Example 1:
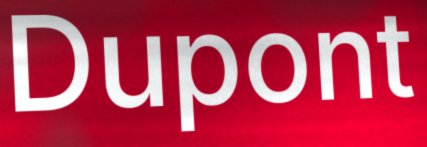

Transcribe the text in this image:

Dupont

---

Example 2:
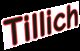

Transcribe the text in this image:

Tillich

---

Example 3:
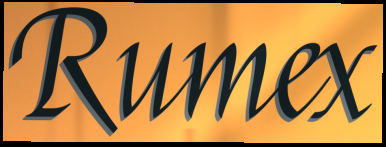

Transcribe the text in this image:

Rumex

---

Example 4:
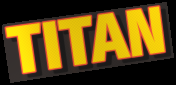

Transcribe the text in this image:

TITAN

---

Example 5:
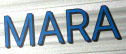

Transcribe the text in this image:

MARA